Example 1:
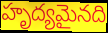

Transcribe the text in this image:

హృద్యమైనది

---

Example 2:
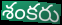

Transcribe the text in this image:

శంకరు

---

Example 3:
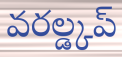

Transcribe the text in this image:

వరల్డ్కప్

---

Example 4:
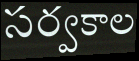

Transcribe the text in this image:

సర్వకాల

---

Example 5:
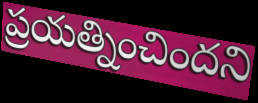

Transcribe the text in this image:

ప్రయత్నించిందని